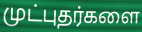
முட்புதர்களை